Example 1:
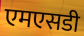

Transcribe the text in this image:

एमएसडी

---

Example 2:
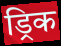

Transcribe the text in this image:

ड्रिक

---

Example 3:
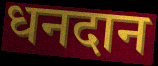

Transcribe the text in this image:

धनदान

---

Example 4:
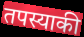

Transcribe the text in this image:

तपस्याकी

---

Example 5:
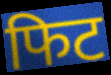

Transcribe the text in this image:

फिट